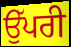
ਉੱਪਰੀ